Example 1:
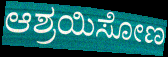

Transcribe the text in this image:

ಆಶ್ರಯಿಸೋಣ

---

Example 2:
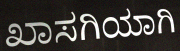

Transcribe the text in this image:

ಖಾಸಗಿಯಾಗಿ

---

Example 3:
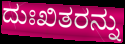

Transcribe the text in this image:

ದುಃಖಿತರನ್ನು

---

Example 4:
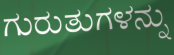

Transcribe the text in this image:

ಗುರುತುಗಳನ್ನು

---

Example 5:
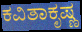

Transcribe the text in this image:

ಕವಿತಾಕೃಷ್ಣ